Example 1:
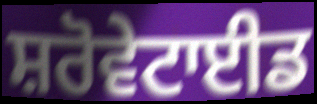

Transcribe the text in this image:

ਸ਼ਰੋਵੇਟਾਈਡ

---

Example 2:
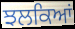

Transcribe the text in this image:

ਝਲਕਿਆਂ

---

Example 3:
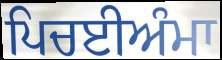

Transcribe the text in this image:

ਪਿਚਈਅੰਮਾ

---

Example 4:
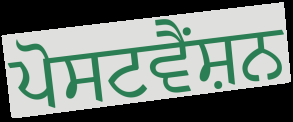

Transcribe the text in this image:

ਪੋਸਟਵੈਂਸ਼ਨ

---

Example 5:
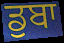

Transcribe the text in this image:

ਡੁਬਾ